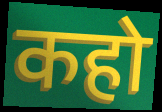
कहो